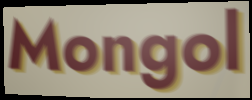
Mongol